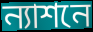
ন্যাশনে